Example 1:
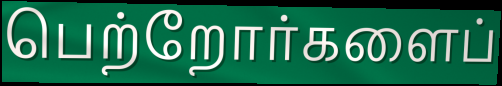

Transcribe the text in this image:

பெற்றோர்களைப்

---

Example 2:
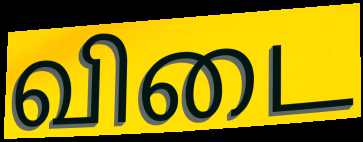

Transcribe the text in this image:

விடை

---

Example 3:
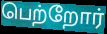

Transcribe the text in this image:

பெற்றோர்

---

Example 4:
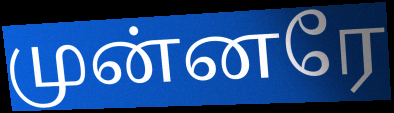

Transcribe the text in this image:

முன்னரே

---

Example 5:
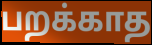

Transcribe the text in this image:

பறக்காத